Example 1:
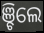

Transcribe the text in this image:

ଞ୍ଚିଲେ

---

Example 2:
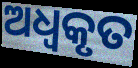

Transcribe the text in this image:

ଅଧ୍ବକୃତ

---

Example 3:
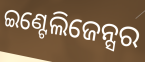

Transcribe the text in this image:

ଇଣ୍ଟେଲିଜେନ୍ସର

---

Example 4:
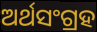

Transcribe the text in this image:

ଅର୍ଥସଂଗ୍ରହ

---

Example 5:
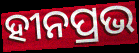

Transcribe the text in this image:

ହୀନପ୍ରଭ